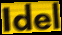
Idel